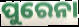
ପୁରେନା